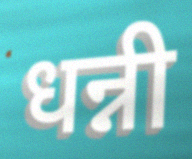
धन्नी